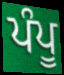
ਪੰਪੂ